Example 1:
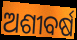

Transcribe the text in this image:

ଅଶୀବର୍ଷ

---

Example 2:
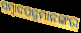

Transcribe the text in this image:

ସମ୍ୱାଦପତ୍ରମାନଙ୍କର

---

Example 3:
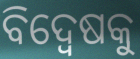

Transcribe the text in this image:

ବିଦ୍ବେଷକୁ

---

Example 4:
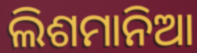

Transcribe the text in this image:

ଲିଶମାନିଆ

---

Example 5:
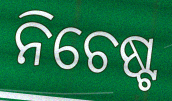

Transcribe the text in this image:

ନିଚେଷ୍ଟ